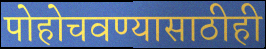
पोहोचवण्यासाठीही